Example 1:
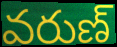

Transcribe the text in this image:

వరుణ్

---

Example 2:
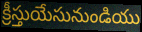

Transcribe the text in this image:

క్రీస్తుయేసునుండియు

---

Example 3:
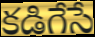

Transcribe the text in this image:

కడిగేసే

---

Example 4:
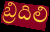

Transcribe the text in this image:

బ్రిదిలి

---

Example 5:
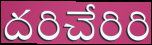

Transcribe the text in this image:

దరిచేరిరి